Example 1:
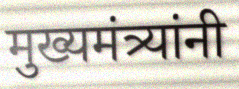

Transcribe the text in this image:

मुख्यमंत्र्यांनी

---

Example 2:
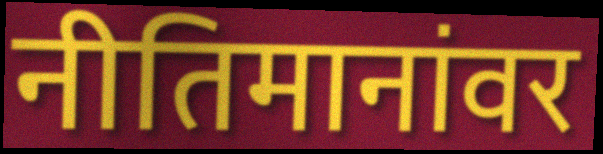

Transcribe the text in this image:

नीतिमानांवर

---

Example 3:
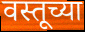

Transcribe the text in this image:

वस्तूच्या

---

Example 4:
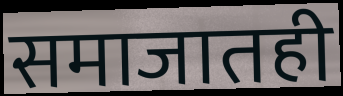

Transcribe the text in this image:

समाजातही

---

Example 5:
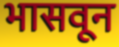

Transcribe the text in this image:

भासवून